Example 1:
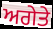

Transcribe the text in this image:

ਅਗੇਤੇ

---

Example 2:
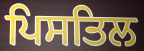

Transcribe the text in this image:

ਪਿਸਤਿਲ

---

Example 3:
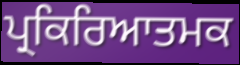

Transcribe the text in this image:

ਪ੍ਰਕਿਰਿਆਤਮਕ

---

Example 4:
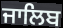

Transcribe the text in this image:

ਜਾਲਿਬ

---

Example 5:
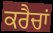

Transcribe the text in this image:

ਕਰੈਚਾਂ